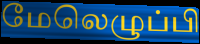
மேலெழுப்பி